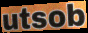
utsob